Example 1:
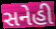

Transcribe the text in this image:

સનેહી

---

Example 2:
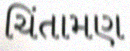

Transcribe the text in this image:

ચિંતામણ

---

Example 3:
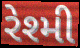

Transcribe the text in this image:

રેશ્મી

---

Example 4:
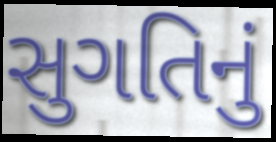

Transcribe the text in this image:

સુગતિનું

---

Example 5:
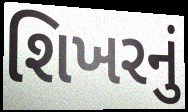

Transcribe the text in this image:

શિખરનું